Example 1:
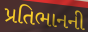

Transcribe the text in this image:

પ્રતિભાનની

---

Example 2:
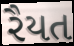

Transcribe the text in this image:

રૈયત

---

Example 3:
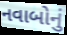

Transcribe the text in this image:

નવાબોનું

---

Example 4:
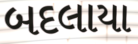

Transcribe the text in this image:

બદલાયા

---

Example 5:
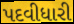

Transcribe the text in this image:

પદવીધારી